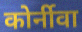
कोर्नीवा